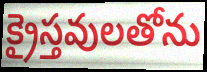
క్రైస్తవులతోను